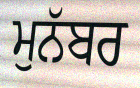
ਮੁਨੱਬਰ